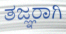
ತಜ್ಞರಾಗಿ